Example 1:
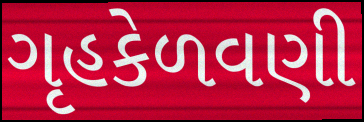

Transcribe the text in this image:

ગૃહકેળવણી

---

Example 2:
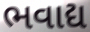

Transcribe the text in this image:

ભવાદ્ય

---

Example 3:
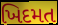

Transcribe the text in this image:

ખિદમત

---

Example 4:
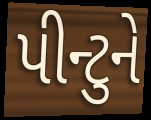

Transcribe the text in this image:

પીન્ટુને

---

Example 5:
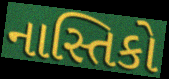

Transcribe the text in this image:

નાસ્તિકો